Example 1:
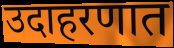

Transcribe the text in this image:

उदाहरणात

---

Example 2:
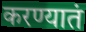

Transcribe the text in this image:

करण्यातं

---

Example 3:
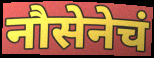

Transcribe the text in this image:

नौसेनेचं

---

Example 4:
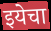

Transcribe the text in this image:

इयेचा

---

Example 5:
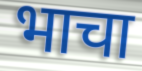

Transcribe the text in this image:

भाचा